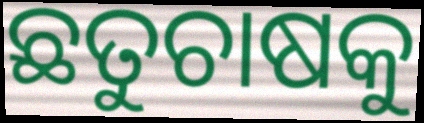
ଛତୁଚାଷକୁ